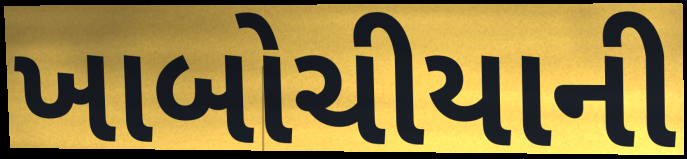
ખાબોચીયાની